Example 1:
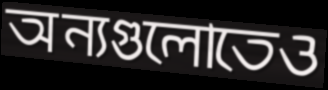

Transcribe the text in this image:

অন্যগুলোতেও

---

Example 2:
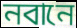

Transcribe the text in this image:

নবানে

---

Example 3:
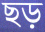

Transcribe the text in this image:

ছড়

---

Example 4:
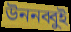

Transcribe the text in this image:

উননব্বুই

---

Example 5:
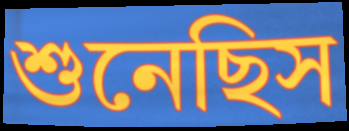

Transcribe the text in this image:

শুনেছিস